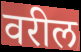
वरील